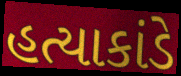
હત્યાકાંડે